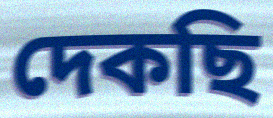
দেকছি